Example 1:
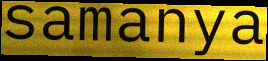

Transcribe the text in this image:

samanya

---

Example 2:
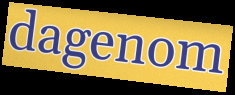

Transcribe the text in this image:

dagenom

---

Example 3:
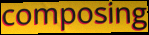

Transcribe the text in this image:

composing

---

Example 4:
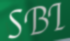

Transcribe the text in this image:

SBI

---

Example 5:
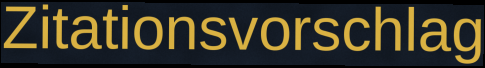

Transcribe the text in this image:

Zitationsvorschlag